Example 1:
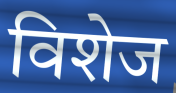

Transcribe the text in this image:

विशेज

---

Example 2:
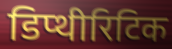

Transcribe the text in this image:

डिप्थीरिटिक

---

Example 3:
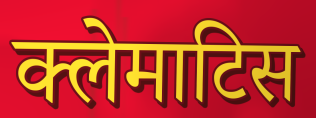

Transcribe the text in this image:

क्लेमाटिस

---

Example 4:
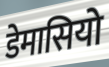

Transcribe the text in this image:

डेमासियो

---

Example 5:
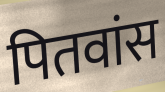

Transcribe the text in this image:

पितवांस